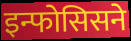
इन्फोसिसने